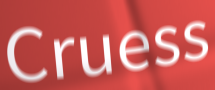
Cruess